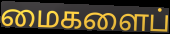
மைகளைப்